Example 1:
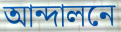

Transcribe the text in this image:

আন্দালনে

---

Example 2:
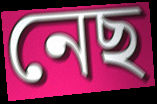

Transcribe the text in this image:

নেছ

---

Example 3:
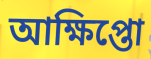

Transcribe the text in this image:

আক্ষিপ্তো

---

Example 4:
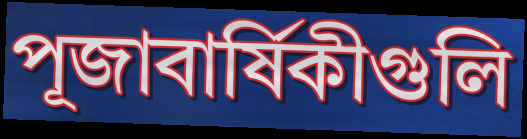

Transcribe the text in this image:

পূজাবার্ষিকীগুলি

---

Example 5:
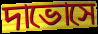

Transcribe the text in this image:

দাভোসে